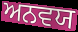
ਅਨਵਯ